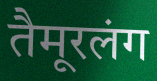
तैमूरलंग